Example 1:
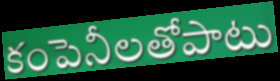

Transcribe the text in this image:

కంపెనీలతోపాటు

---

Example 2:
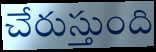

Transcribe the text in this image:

చేరుస్తుంది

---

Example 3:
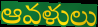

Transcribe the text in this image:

ఆవళులు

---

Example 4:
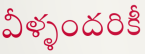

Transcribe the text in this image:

వీళ్ళందరికీ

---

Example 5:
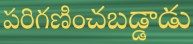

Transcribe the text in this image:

పరిగణించబడ్డాడు